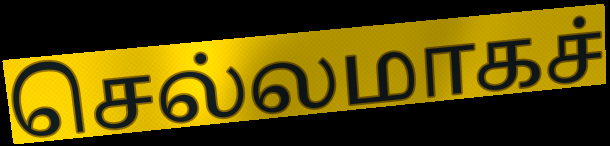
செல்லமாகச்